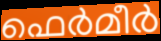
ഫെർമീർ